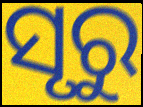
ସୃରୁ